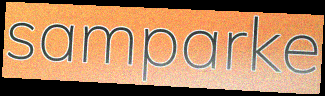
samparke